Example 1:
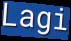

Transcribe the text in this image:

Lagi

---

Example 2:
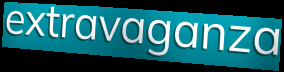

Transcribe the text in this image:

extravaganza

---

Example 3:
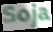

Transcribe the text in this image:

Soja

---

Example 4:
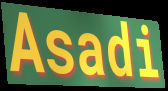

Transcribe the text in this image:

Asadi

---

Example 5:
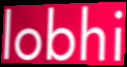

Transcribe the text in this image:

lobhi